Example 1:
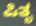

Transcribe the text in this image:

ಪಿತೃ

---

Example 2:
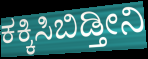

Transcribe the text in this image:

ಕಕ್ಕಿಸಿಬಿಡ್ತೀನಿ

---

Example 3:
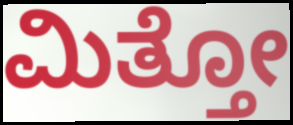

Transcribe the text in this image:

ಮಿತ್ತೋ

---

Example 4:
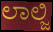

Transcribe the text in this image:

ಲಾಲ್ಜಿ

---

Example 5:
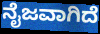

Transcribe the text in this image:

ನೈಜವಾಗಿದೆ